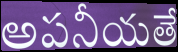
అపనీయతే